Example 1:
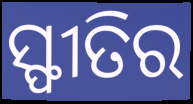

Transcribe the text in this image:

ସ୍ଫୀତିର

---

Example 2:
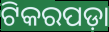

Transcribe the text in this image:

ଟିକରପଡ଼ା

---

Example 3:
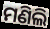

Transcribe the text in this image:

ମଣିଲି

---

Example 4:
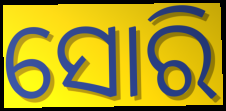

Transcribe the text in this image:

ସୋରି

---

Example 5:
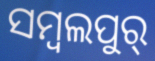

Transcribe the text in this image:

ସମ୍ବଲପୁର୍